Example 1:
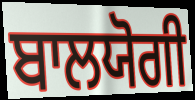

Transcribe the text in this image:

ਬਾਲਯੋਗੀ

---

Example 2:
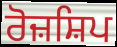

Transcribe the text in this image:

ਰੋਜ਼ਸ਼ਿਪ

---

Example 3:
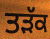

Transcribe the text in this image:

ਤੜੱਕ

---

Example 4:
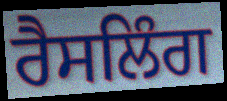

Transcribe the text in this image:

ਰੈਸਲਿੰਗ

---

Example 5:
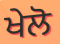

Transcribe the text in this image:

ਖੇਲੋ